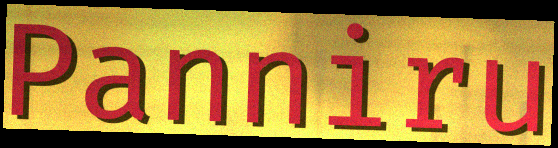
Panniru